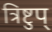
त्रिष्टुप्